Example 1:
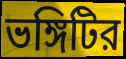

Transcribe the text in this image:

ভঙ্গিটির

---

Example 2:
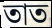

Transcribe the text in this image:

তাত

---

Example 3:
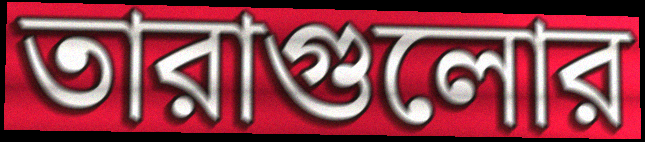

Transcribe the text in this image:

তারাগুলোর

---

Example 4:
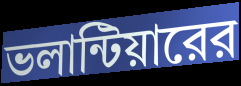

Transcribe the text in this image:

ভলান্টিয়ারের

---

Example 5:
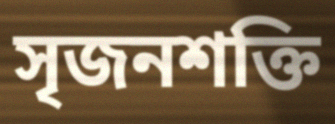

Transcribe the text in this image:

সৃজনশক্তি